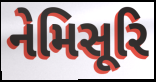
નેમિસૂરિ